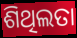
ଶିଥିଲତା